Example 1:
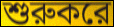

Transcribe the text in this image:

শুরুকরে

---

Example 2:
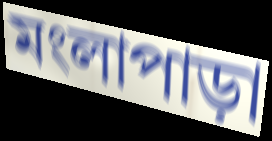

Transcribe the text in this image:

মংলাপাড়া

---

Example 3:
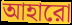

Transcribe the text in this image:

আহারো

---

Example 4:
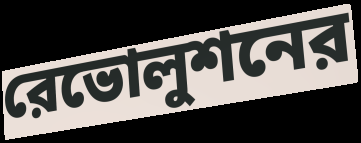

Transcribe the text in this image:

রেভোলুশনের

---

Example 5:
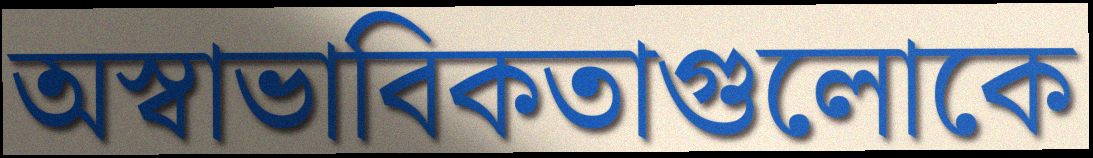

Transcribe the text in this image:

অস্বাভাবিকতাগুলোকে